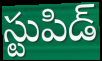
స్టుపిడ్